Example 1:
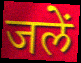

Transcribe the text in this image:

जलें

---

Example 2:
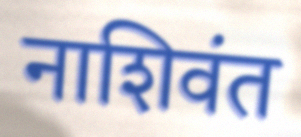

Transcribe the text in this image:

नाशिवंत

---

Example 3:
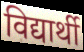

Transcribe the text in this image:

विद्यार्थी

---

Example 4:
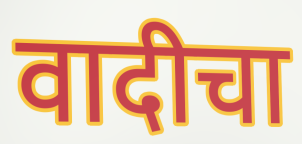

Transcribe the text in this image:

वादीचा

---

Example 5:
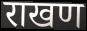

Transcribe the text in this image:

राखण